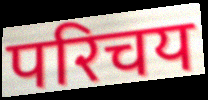
परिचय